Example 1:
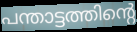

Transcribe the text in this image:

പന്താട്ടത്തിന്റെ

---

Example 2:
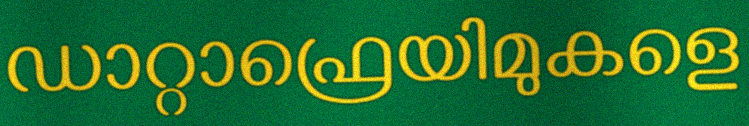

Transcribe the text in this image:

ഡാറ്റാഫ്രെയിമുകളെ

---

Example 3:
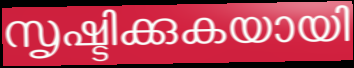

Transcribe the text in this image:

സൃഷ്ടിക്കുകയായി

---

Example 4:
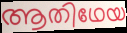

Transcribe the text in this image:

ആതിഥേയ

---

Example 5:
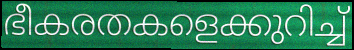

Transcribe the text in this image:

ഭീകരതകളെക്കുറിച്ച്